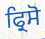
ਫ੍ਰਿਸੋ